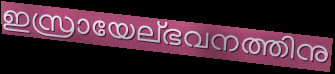
ഇസ്രായേല്ഭവനത്തിനു